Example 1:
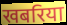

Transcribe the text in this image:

खबरिया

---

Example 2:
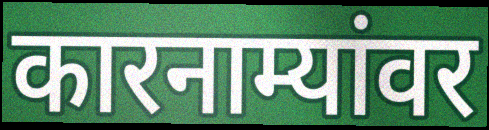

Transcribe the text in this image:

कारनाम्यांवर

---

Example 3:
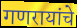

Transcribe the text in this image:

गणरायांचे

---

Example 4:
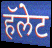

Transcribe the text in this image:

हॅलेट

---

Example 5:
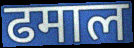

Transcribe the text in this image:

ढमाल